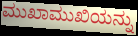
ಮುಖಾಮುಖಿಯನ್ನು